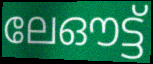
ലേഔട്ട്